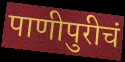
पाणीपुरीचं